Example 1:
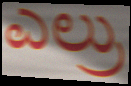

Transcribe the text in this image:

ಎಲ್ರು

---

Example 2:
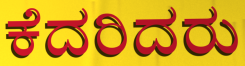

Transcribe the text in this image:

ಕೆದರಿದರು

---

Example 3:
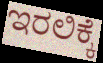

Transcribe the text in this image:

ಇರಲಿಕ್ಕೆ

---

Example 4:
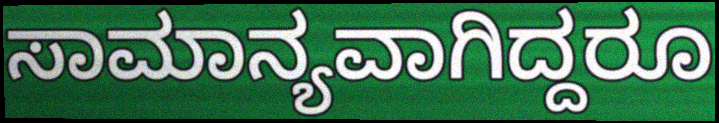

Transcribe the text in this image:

ಸಾಮಾನ್ಯವಾಗಿದ್ದರೂ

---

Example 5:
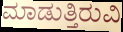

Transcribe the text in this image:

ಮಾಡುತ್ತಿರುವಿ